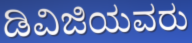
ಡಿವಿಜಿಯವರು